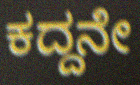
ಕದ್ದನೇ